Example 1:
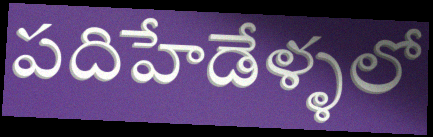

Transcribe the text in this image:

పదిహేడేళ్ళలో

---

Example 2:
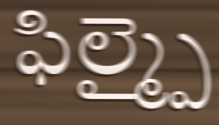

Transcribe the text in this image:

ఫిల్మ్పై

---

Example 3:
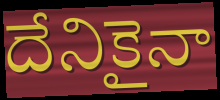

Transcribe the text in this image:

దేనికైనా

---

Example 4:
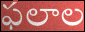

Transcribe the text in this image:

ఫలాల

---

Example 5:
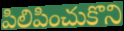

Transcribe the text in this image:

పిలిపించుకొని